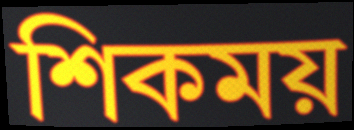
শিকময়